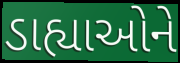
ડાહ્યાઓને